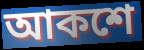
আকশে